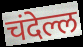
चंदेल्ल